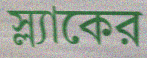
স্ল্যাকের